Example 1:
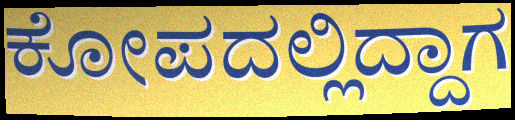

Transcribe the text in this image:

ಕೋಪದಲ್ಲಿದ್ದಾಗ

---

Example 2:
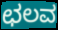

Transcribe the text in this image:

ಛಲವ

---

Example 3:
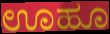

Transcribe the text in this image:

ಊಹೂ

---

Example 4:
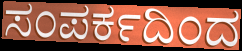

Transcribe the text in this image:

ಸಂಪರ್ಕದಿಂದ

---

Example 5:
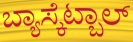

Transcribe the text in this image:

ಬ್ಯಾಸ್ಕೆಟ್ಬಾಲ್